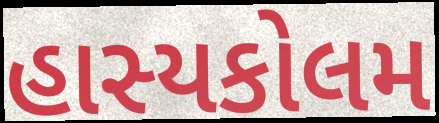
હાસ્યકોલમ